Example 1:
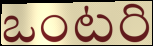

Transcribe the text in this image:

ఒంటరి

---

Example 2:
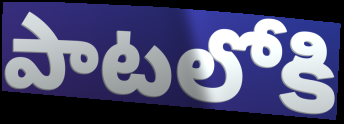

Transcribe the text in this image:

పాటలోకి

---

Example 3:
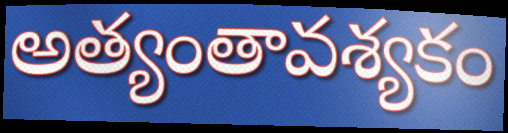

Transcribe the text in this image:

అత్యంతావశ్యకం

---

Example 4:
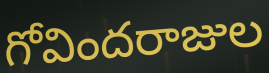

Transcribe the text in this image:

గోవిందరాజుల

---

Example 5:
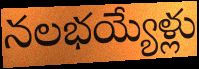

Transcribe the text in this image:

నలభయ్యేళ్లు